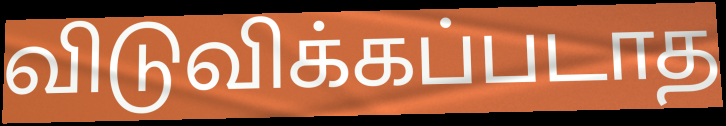
விடுவிக்கப்படாத